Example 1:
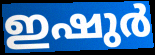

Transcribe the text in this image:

ഇഷുർ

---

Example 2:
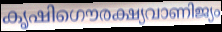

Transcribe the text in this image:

കൃഷിഗൌരക്ഷ്യവാണിജ്യം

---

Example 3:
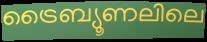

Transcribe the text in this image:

ട്രൈബ്യൂണലിലെ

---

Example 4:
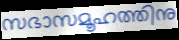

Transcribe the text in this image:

സഭാസമൂഹത്തിനു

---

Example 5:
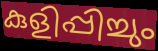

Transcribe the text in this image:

കുളിപ്പിച്ചും